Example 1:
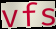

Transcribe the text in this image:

vfs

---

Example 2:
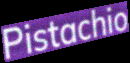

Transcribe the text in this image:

Pistachio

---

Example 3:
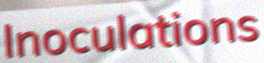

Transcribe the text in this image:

Inoculations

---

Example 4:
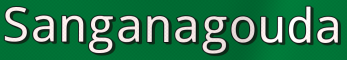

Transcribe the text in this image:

Sanganagouda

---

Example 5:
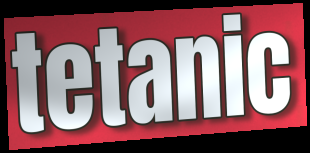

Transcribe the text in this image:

tetanic